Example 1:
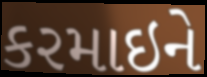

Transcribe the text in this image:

કરમાઇને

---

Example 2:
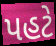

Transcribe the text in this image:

પહટે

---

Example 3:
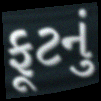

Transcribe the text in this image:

ફૂટનું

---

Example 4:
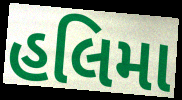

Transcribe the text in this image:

હલિમા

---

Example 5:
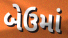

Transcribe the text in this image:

બેઉમાં